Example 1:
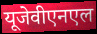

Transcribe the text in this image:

यूजेवीएनएल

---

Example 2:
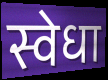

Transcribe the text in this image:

स्वेधा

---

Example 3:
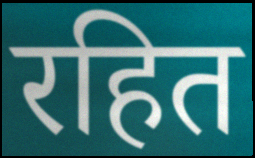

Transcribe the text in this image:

रहित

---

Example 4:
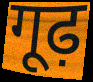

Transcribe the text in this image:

गूढ़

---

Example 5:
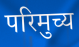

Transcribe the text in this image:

परिमुच्य